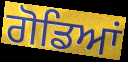
ਗੋਡਿਆਂ